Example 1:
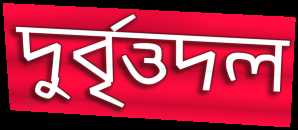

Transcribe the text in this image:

দুর্বৃত্তদল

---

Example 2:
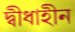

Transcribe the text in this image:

দ্বীধাহীন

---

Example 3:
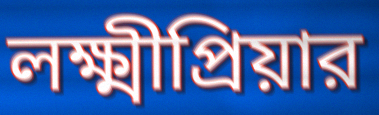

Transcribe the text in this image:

লক্ষ্মীপ্রিয়ার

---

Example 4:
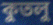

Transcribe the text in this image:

কুতলু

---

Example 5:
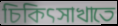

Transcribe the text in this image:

চিকিৎসাখাতে